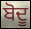
ਬੋਦੂ